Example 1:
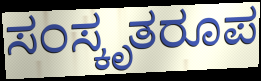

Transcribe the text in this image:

ಸಂಸ್ಕೃತರೂಪ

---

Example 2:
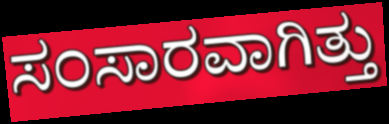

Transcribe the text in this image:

ಸಂಸಾರವಾಗಿತ್ತು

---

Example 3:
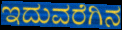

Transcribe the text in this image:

ಇದುವರೆಗಿನ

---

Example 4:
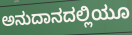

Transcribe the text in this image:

ಅನುದಾನದಲ್ಲಿಯೂ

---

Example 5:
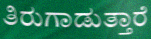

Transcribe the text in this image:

ತಿರುಗಾಡುತ್ತಾರೆ